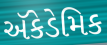
ઍકેડેમિક